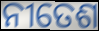
ନୀତେଶ